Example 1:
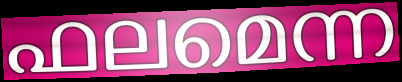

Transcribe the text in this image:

ഫലമെന്ന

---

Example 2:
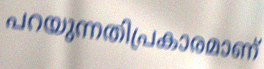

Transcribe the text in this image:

പറയുന്നതിപ്രകാരമാണ്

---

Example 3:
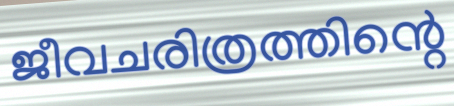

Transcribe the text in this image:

ജീവചരിത്രത്തിന്റെ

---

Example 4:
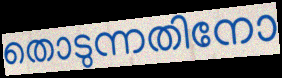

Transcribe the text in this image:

തൊടുന്നതിനോ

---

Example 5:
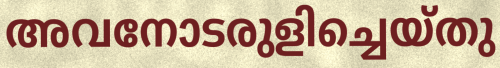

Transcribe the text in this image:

അവനോടരുളിച്ചെയ്തു